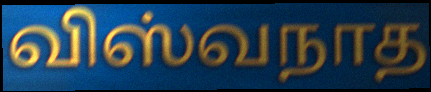
விஸ்வநாத